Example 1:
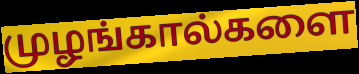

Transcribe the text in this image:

முழங்கால்களை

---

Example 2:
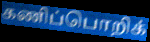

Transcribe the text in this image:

கணிப்பொறிக்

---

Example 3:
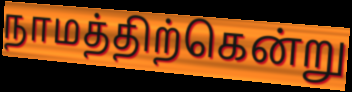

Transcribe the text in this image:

நாமத்திற்கென்று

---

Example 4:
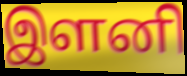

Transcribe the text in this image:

இளனி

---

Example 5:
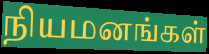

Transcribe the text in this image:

நியமனங்கள்